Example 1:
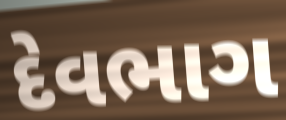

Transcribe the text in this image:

દેવભાગ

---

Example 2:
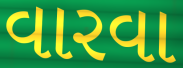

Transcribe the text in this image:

વારવા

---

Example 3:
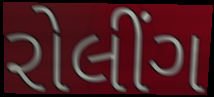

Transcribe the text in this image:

રોલીંગ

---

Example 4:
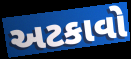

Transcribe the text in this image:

અટકાવો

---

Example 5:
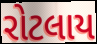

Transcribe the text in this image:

રોટલાય